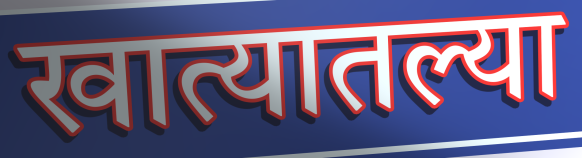
खात्यातल्या